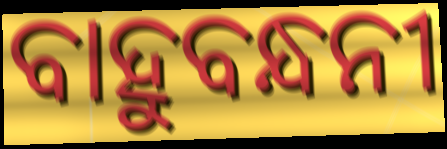
ବାହୁବନ୍ଧନୀ